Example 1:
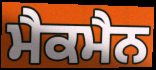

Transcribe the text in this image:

ਮੈਕਮੈਨ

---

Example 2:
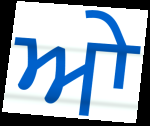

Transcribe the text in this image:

ਆੇ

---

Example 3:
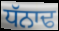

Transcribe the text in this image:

ਧੱਨਾਢ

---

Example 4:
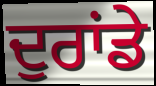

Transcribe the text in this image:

ਦੁਰਾਂਡੇ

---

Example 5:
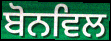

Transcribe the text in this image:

ਬੋਨਵਿਲ